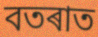
বতৰাত